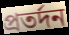
প্রতর্দন